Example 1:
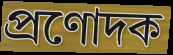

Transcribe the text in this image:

প্রণোদক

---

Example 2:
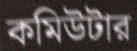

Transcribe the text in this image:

কমিউটার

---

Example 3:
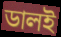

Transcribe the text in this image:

ডালই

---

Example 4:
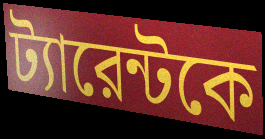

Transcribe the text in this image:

ট্যারেন্টকে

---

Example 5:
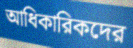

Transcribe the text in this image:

আধিকারিকদের